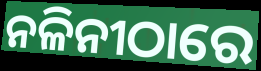
ନଳିନୀଠାରେ